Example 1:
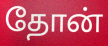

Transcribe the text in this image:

தோன்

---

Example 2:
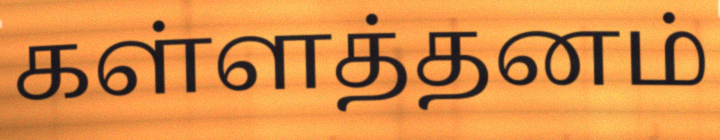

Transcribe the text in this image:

கள்ளத்தனம்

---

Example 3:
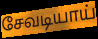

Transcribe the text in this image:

சேவடியாய்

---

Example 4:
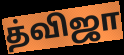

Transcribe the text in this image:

த்விஜா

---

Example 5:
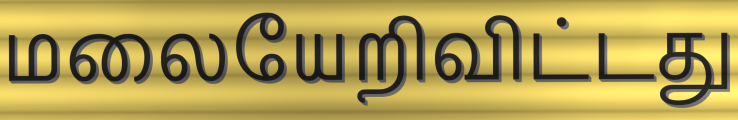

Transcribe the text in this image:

மலையேறிவிட்டது